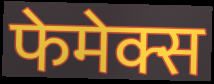
फेमेक्स